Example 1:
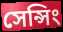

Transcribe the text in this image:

সেন্সিং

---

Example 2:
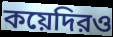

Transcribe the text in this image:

কয়েদিরও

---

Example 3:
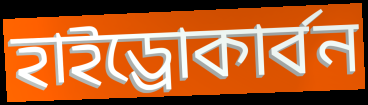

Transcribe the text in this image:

হাইড্রোকার্বন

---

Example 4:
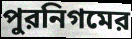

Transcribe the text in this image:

পুরনিগমের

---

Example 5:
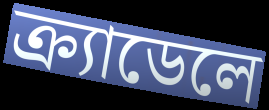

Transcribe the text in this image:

ক্র্যাডেলে